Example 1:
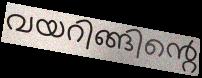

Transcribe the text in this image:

വയറിങ്ങിന്റെ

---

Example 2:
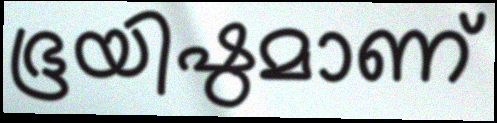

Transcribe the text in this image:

ഭൂയിഷ്ഠമാണ്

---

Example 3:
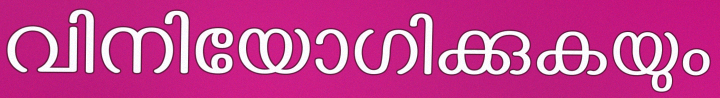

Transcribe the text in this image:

വിനിയോഗിക്കുകയും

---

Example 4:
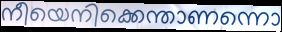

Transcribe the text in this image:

നീയെനിക്കെന്താണന്നൊ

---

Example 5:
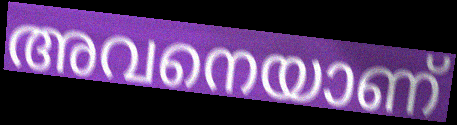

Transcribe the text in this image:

അവനെയാണ്